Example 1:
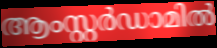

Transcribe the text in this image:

ആംസ്റ്റർഡാമിൽ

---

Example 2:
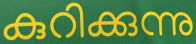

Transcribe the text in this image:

കുറിക്കുന്നു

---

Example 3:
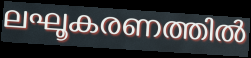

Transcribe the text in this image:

ലഘൂകരണത്തിൽ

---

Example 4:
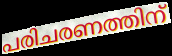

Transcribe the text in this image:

പരിചരണത്തിന്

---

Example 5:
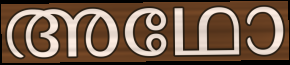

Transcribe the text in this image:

അഥോ